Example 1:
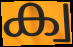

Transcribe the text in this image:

ക്വ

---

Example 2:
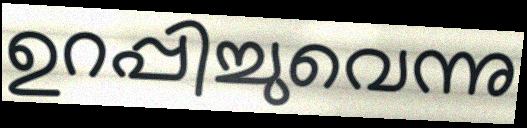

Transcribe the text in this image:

ഉറപ്പിച്ചുവെന്നു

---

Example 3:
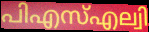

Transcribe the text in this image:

പിഎസ്എല്വി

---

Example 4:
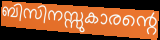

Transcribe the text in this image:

ബിസിനസ്സുകാരന്റെ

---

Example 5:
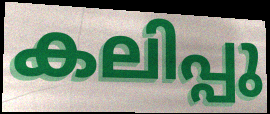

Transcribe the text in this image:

കലിപ്പു